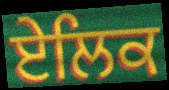
ਏਲਿਕ